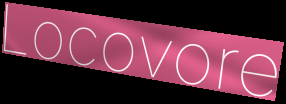
Locovore